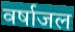
वर्षाजल